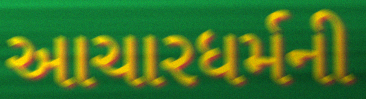
આચારધર્મની